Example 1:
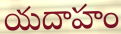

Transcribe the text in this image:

యదాహం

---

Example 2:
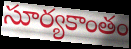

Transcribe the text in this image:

సూర్యకాంతం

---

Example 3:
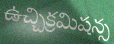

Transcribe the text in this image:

ఉచ్చిక్రమిషన్స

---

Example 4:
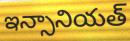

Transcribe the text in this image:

ఇన్సానియత్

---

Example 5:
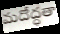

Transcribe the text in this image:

మదోద్ధతా